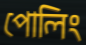
পোলিং